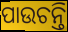
ପାଉଚନ୍ତି